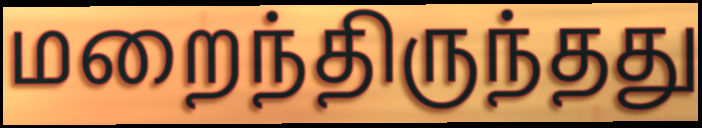
மறைந்திருந்தது